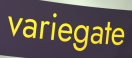
variegate